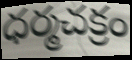
ధర్మచక్రం